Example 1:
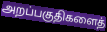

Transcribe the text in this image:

அறப்பகுதிகளைத்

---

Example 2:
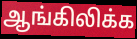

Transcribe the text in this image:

ஆங்கிலிக்க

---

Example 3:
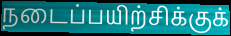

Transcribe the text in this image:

நடைப்பயிற்சிக்குக்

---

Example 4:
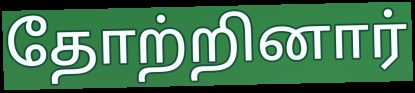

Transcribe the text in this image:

தோற்றினார்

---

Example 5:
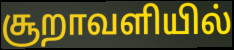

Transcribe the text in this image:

சூறாவளியில்